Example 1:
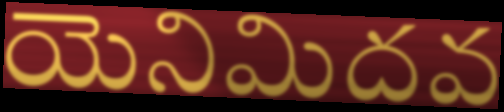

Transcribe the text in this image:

యెనిమిదవ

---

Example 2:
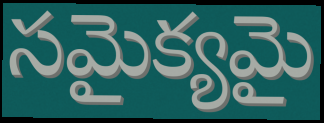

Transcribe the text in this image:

సమైక్యమై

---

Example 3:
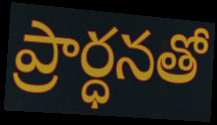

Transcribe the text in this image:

ప్రార్ధనతో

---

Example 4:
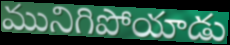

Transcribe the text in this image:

మునిగిపోయాడు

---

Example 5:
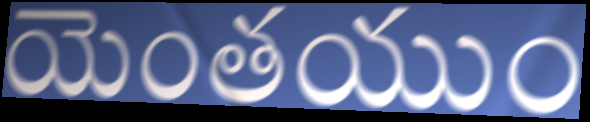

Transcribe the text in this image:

యెంతయుం